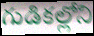
గుడికల్లోని